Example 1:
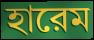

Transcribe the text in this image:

হারেম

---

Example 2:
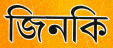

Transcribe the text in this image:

জিনকি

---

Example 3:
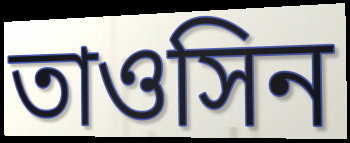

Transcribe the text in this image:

তাওসিন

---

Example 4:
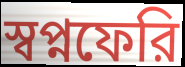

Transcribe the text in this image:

স্বপ্নফেরি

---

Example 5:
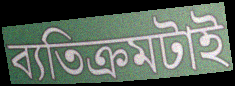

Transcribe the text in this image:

ব্যতিক্রমটাই